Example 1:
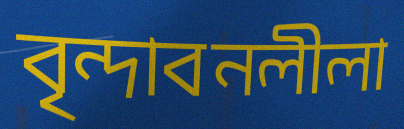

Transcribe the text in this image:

বৃন্দাবনলীলা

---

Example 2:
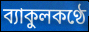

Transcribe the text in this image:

ব্যাকুলকণ্ঠে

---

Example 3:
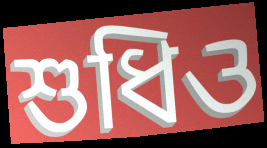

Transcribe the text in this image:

শুধিও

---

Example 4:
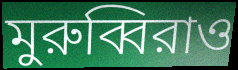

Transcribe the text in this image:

মুরুব্বিরাও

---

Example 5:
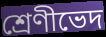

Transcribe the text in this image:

শ্রেণীভেদ